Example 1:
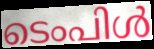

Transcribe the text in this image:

ടെംപിൾ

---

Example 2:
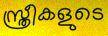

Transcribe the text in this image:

സ്ത്രീകളുടെ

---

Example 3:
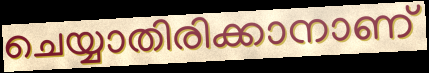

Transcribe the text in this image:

ചെയ്യാതിരിക്കാനാണ്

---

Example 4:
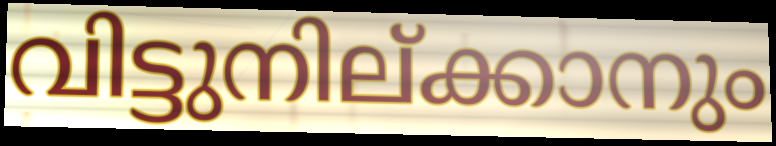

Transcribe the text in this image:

വിട്ടുനില്ക്കാനും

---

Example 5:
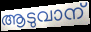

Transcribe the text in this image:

ആടുവാന്